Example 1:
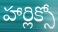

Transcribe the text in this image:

హార్లిక్సో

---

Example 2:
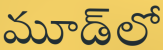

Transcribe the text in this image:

మూడ్‌లో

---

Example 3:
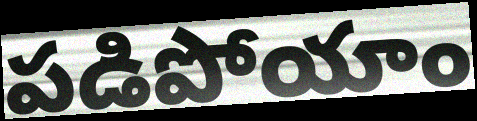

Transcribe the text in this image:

పడిపోయాం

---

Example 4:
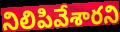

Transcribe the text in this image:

నిలిపివేశారని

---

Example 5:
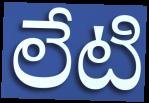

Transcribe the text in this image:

లేటి